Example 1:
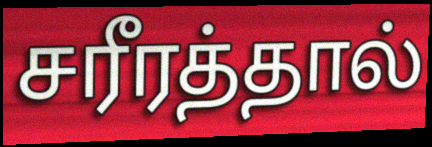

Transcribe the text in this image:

சரீரத்தால்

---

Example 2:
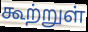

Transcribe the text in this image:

கூற்றுள்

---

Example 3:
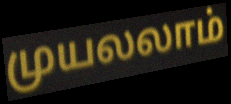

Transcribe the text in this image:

முயலலாம்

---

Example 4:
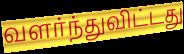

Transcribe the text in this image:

வளர்ந்துவிட்டது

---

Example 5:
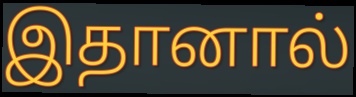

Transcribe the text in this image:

இதானால்